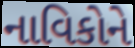
નાવિકોને